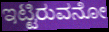
ಇಟ್ಟಿರುವನೋ